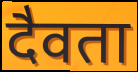
दैवता